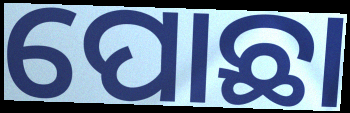
ପୋଛା